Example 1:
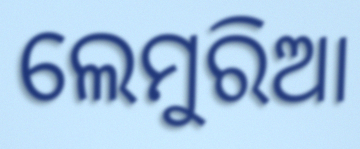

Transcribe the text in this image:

ଲେମୁରିଆ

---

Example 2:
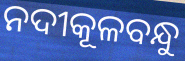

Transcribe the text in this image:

ନଦୀକୂଳବନ୍ଧୁ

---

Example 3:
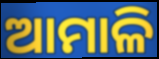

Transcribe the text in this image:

ଆମାଳି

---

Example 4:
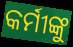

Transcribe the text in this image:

କର୍ମୀଙ୍କୁ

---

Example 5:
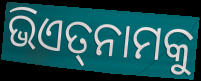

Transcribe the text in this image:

ଭିଏତ୍‌ନାମକୁ